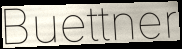
Buettner